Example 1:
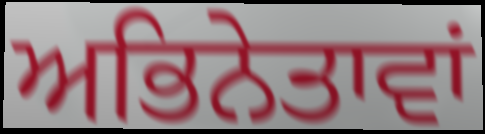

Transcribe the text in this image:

ਅਭਿਨੇਤਾਵਾਂ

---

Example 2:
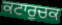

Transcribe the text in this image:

ਕਟਾਰੁਚਕ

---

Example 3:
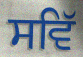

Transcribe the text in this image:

ਸਵਿੱ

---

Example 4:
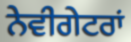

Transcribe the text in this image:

ਨੇਵੀਗੇਟਰਾਂ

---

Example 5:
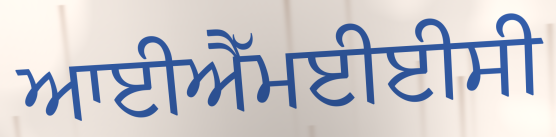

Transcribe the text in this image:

ਆਈਐੱਮਈਈਸੀ